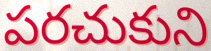
పరచుకుని